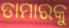
ତାମାରକୁ